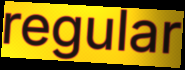
regular